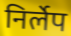
निर्लेप